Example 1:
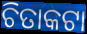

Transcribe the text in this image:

ଚିତାକଟା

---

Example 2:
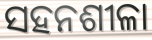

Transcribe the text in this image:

ସହନଶୀଳା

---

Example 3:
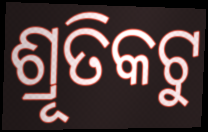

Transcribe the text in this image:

ଶ୍ରୂତିକଟୁ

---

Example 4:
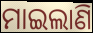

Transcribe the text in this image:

ମାଇଲାଣି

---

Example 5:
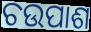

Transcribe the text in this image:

ଚଉପାଶ